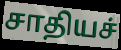
சாதியச்